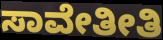
ಸಾವೇತೀತಿ